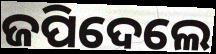
ଜପିଦେଲେ